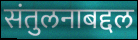
संतुलनाबद्दल